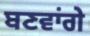
ਬਣਵਾਂਗੇ